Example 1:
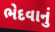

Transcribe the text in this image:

ભેદવાનું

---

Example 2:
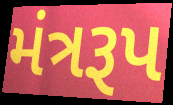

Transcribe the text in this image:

મંત્રરૂપ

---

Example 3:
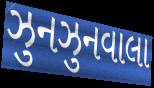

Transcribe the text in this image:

ઝુનઝુનવાલા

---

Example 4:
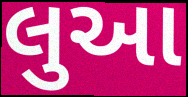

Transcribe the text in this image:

લુઆ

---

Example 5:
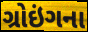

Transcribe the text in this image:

ગ્રોઇંગના